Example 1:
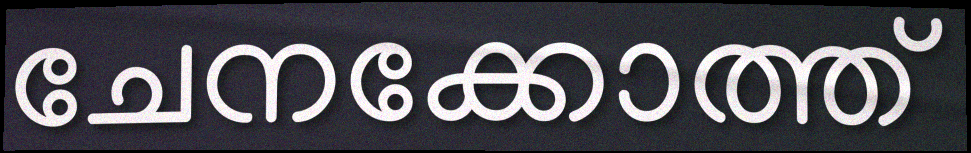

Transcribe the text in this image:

ചേനക്കോത്ത്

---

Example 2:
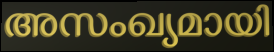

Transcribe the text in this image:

അസംഖ്യമായി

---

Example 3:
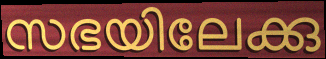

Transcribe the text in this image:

സഭയിലേക്കു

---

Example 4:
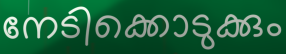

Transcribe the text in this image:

നേടിക്കൊടുക്കും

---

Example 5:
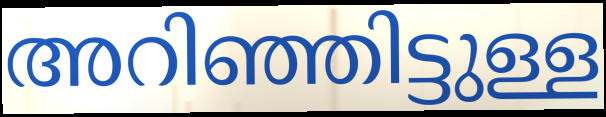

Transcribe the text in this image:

അറിഞ്ഞിട്ടുള്ള